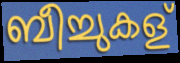
ബീച്ചുകള്